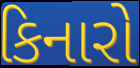
કિનારો